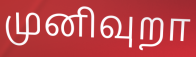
முனிவுறா